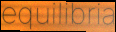
equilibria